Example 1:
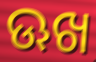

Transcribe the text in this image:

ଊଖ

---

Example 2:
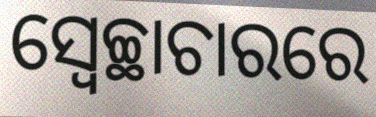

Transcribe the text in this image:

ସ୍ବେଚ୍ଛାଚାରରେ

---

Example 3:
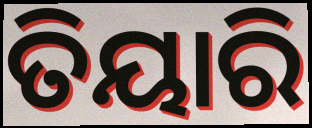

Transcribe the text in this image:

ତିୟାରି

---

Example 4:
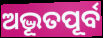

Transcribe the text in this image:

ଅଦ୍ଭୂତପୂର୍ବ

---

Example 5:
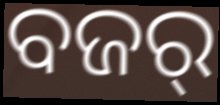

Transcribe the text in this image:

ବଜର୍